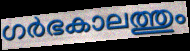
ഗർഭകാലത്തും